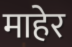
माहेर